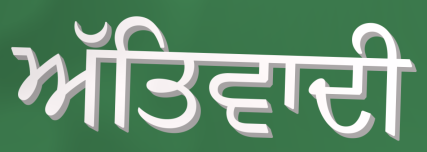
ਅੱਤਿਵਾਦੀ